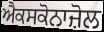
ਐਕਸਕੋਨਾਜ਼ੋਲ